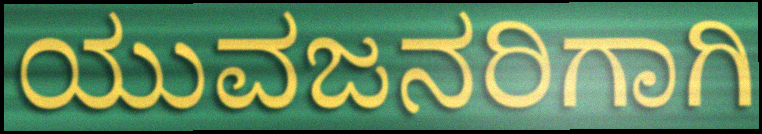
ಯುವಜನರಿಗಾಗಿ